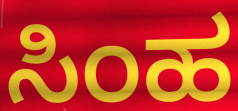
ಸಿಂಹ